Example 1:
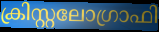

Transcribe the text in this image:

ക്രിസ്റ്റലോഗ്രാഫി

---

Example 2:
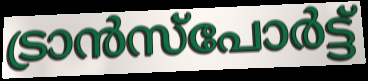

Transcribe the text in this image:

ട്രാൻസ്പോർട്ട്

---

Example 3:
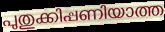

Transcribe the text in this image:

പുതുക്കിപ്പണിയാത്ത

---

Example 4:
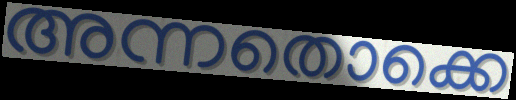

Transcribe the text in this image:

അന്നതൊക്കെ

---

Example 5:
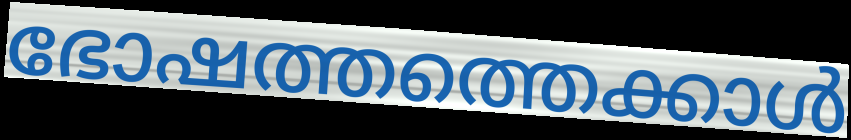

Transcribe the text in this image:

ഭോഷത്തത്തെക്കാൾ